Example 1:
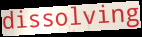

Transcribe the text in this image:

dissolving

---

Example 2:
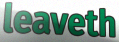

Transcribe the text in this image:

leaveth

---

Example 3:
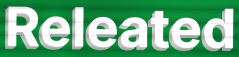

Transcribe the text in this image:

Releated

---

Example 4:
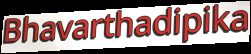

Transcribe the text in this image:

Bhavarthadipika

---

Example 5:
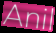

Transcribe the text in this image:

Anil